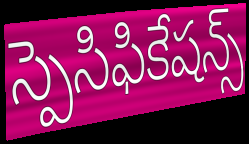
స్పెసిఫికేషన్స్